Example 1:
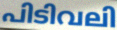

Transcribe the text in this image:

പിടിവലി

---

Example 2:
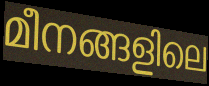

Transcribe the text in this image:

മീനങ്ങളിലെ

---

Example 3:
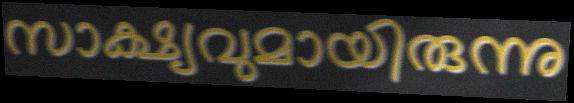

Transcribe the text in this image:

സാക്ഷ്യവുമായിരുന്നു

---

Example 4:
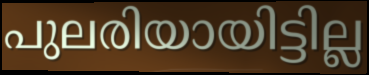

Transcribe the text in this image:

പുലരിയായിട്ടില്ല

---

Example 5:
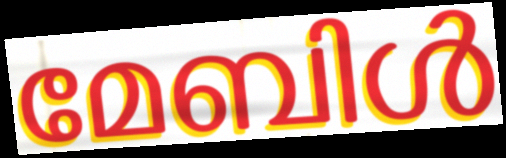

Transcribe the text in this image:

മേബിൾ